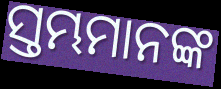
ସ୍ତମ୍ଭମାନଙ୍କ